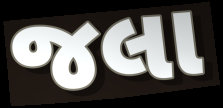
જલા